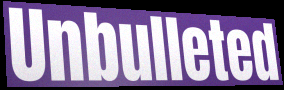
Unbulleted